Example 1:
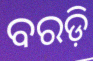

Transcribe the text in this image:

ବରଡ଼ି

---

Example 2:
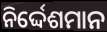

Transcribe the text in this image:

ନିର୍ଦ୍ଦେଶମାନ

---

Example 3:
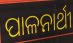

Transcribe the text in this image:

ପାଳନାର୍ଥୀ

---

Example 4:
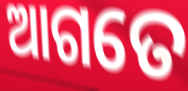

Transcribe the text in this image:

ଆଗତେ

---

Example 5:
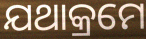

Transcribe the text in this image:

ଯଥାକ୍ରମେ